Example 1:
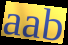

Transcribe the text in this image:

aab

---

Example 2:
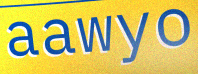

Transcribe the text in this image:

aawyo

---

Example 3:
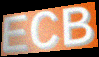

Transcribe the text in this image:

ECB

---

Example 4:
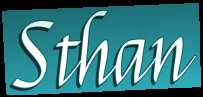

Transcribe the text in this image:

Sthan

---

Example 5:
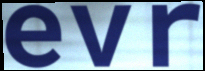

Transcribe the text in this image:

evr